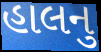
હાલનુ